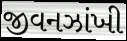
જીવનઝાંખી